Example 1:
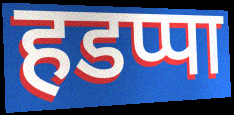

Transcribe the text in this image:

हडप्पा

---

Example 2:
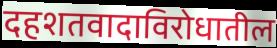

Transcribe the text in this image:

दहशतवादाविरोधातील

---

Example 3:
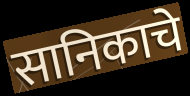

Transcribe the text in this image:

सानिकाचे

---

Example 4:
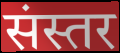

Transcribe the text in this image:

संस्तर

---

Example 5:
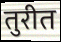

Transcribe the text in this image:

तुरीत